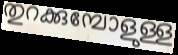
തുറക്കുമ്പോളുള്ള